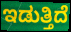
ಇಡುತ್ತಿದೆ